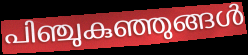
പിഞ്ചുകുഞ്ഞുങ്ങൾ